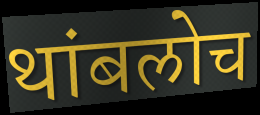
थांबलोच